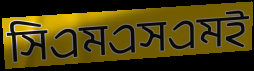
সিএমএসএমই